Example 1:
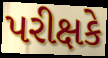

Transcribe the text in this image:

પરીક્ષકે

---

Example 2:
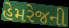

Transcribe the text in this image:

હેમરેજની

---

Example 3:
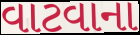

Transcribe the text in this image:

વાટવાના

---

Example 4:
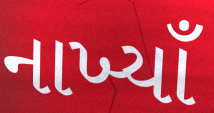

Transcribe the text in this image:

નાખ્યાઁ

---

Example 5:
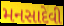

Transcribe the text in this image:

મનસાદેવી